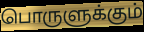
பொருளுக்கும்